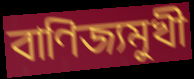
বাণিজ্যমুখী